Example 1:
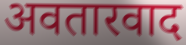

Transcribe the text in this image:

अवतारवाद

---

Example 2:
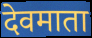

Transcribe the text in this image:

देवमाता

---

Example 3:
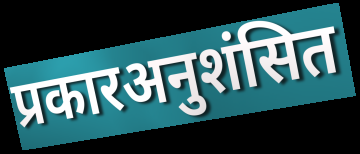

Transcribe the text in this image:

प्रकारअनुशंसित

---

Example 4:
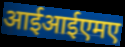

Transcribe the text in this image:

आईआईएमए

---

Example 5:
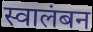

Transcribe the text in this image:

स्वालंबन